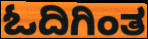
ಓದಿಗಿಂತ